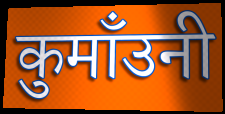
कुमाँउनी